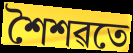
শৈশৱতে